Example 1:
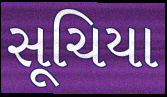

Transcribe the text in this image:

સૂચિયા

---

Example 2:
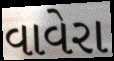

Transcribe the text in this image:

વાવેરા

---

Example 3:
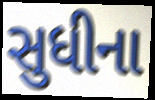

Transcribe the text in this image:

સુધીના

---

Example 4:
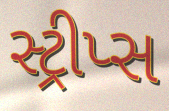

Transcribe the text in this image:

સ્ટ્રીપ્સ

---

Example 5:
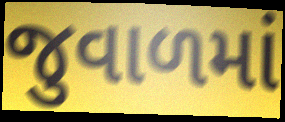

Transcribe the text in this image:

જુવાળમાં